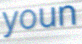
youn